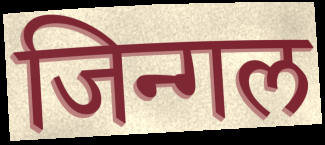
जिन्गल